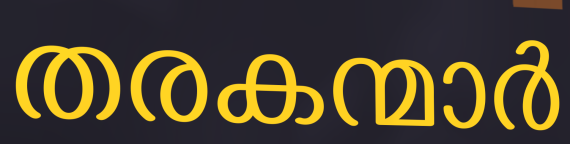
തരകന്മാർ